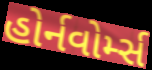
હોર્નવોર્મ્સ